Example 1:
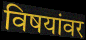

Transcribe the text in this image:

विषयांवर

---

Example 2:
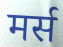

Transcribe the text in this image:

मर्स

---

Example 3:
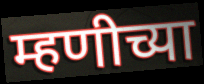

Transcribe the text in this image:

म्हणीच्या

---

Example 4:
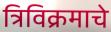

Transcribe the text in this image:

त्रिविक्रमाचे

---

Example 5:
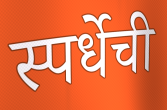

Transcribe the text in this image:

स्पर्धेची